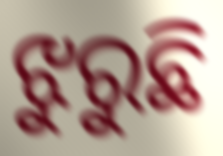
ଝୁରୁଛି